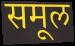
समूल